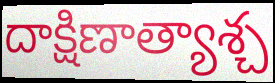
దాక్షిణాత్యాశ్చ